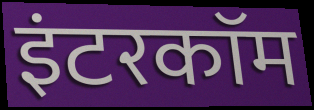
इंटरकॉम